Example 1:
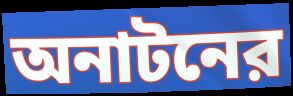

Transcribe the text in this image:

অনাটনের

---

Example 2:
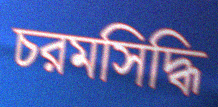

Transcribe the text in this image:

চরমসিদ্ধি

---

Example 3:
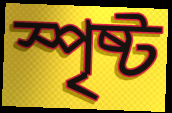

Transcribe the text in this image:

স্পৃষ্ট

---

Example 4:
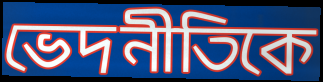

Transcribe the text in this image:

ভেদনীতিকে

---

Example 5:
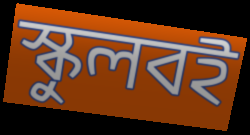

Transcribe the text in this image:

স্কুলবই